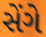
સેંગે